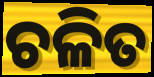
ଚଳିତ